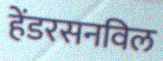
हेंडरसनविल